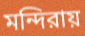
মন্দিরায়